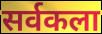
सर्वकला